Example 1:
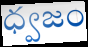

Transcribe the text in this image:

ధ్వజం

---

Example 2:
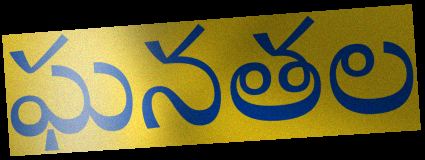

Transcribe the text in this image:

ఘనతల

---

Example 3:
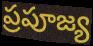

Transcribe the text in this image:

ప్రపూజ్య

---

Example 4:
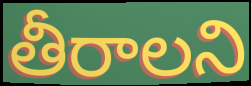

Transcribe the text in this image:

తీరాలని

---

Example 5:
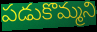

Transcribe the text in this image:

పడుకొమ్మని